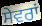
ਸੇਵਰਾਂ